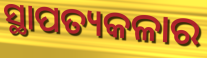
ସ୍ଥାପତ୍ୟକଳାର